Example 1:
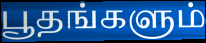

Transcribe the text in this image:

பூதங்களும்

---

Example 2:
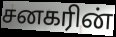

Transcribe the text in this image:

சனகரின்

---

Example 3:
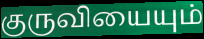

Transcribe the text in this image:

குருவியையும்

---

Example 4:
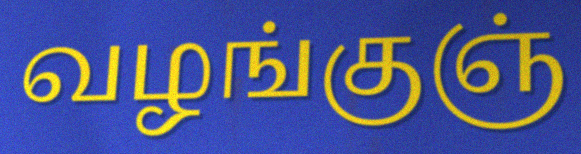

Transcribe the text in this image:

வழங்குஞ்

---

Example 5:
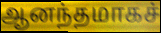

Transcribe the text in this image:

ஆனந்தமாகச்